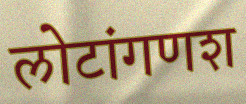
लोटांगणश